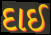
દાઈ